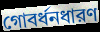
গোবর্ধনধারণ